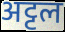
अट्टल